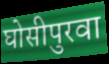
घोसीपुरवा